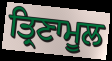
ਤ੍ਰਿਣਾਮੂਲ